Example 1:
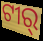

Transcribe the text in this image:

ଟୀର୍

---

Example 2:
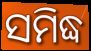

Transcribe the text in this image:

ସମିଦ୍ଧ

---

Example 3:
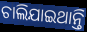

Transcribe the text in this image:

ଚାଲିଯାଇଥାନ୍ତି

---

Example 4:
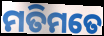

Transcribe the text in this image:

ମତିମତେ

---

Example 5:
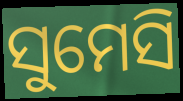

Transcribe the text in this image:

ସୁମେସି